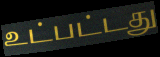
உட்பட்டது